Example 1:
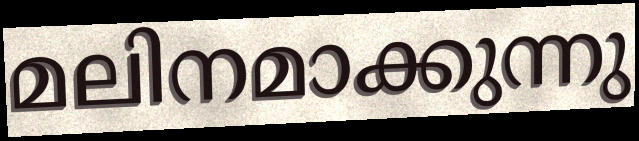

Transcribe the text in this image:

മലിനമാക്കുന്നു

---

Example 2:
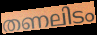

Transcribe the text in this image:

തണലിടം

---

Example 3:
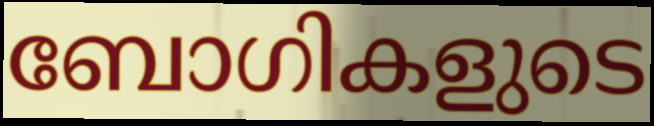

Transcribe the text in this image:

ബോഗികളുടെ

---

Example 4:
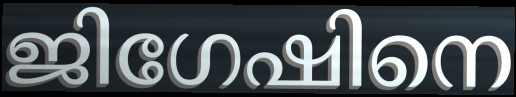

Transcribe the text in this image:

ജിഗേഷിനെ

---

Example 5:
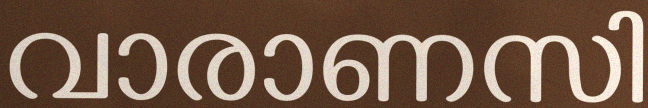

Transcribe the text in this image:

വാരാണസി